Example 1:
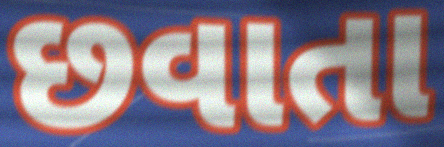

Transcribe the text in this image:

છવાતા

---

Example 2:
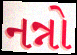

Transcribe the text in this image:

નન્નો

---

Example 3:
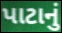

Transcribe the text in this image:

પાટાનું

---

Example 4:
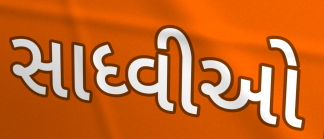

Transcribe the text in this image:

સાધ્વીઓ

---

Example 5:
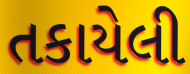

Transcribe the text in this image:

તકાયેલી